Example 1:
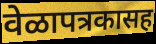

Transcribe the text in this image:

वेळापत्रकासह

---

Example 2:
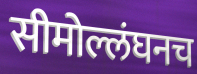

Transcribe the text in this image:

सीमोल्लंघनच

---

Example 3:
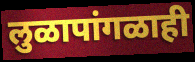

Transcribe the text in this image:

लुळापांगळाही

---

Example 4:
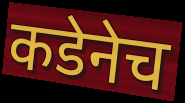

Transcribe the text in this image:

कडेनेच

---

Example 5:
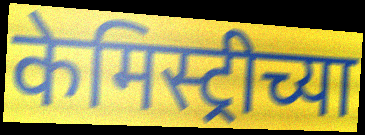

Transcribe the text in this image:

केमिस्ट्रीच्या